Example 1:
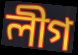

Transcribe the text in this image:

লীগ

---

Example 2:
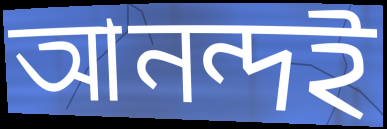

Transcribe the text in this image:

আনন্দই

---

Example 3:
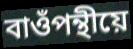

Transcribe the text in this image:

বাওঁপন্থীয়ে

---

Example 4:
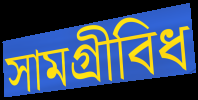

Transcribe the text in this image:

সামগ্ৰীবিধ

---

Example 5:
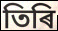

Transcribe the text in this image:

তিৰি